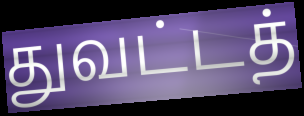
துவட்டத்